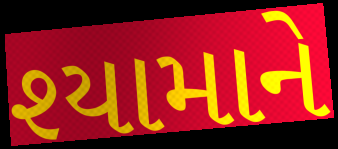
શ્યામાને